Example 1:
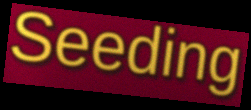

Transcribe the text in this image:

Seeding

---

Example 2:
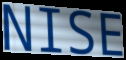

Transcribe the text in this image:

NISE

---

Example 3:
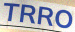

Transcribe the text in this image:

TRRO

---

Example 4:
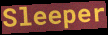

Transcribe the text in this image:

Sleeper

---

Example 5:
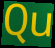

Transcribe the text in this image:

Qu